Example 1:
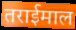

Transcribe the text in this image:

तराईमाल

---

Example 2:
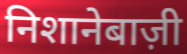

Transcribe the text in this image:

निशानेबाज़ी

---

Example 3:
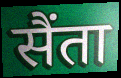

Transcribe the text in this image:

सैंता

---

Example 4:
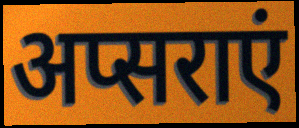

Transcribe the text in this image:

अप्सराएं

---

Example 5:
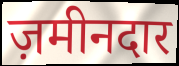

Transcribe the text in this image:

ज़मीनदार